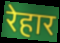
रेहार